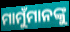
ମାମୁଁମାନଙ୍କୁ